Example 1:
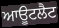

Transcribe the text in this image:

ਆਊਟਲੈਟ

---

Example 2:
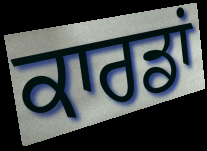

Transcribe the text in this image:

ਕਾਰਡਾਂ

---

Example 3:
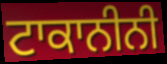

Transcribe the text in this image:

ਟਾਕਾਨੀਨੀ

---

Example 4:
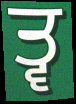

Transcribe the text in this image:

ਤ੍ਵ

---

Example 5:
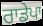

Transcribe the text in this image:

ਰਾਡੇਪਾ